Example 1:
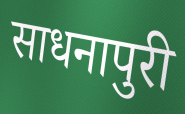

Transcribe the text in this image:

साधनापुरी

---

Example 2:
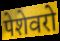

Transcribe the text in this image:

पेशेवरो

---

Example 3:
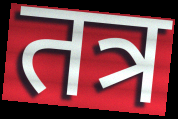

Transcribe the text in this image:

तत्र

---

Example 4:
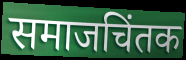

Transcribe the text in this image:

समाजचिंतक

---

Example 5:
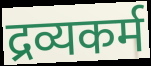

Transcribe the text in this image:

द्रव्यकर्म